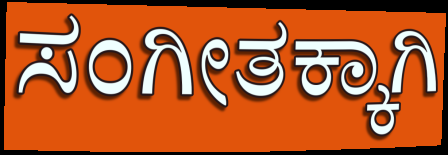
ಸಂಗೀತಕ್ಕಾಗಿ